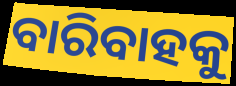
ବାରିବାହକୁ